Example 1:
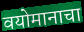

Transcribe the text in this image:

वयोमानाचा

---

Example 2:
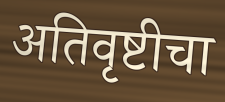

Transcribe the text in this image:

अतिवृष्टीचा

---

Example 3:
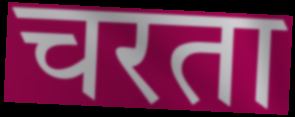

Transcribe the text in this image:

चरता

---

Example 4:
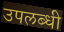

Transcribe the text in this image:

उपलब्धी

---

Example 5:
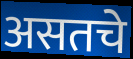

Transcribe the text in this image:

असतचे